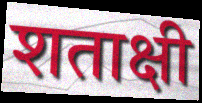
शताक्षी